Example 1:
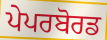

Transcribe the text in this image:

ਪੇਪਰਬੋਰਡ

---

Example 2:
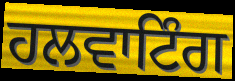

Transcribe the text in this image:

ਹਲਵਾਟਿੰਗ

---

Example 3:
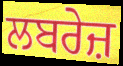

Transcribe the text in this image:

ਲਬਰੇਜ਼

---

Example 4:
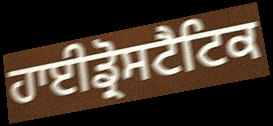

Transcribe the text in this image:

ਹਾਈਡ੍ਰੋਸਟੈਟਿਕ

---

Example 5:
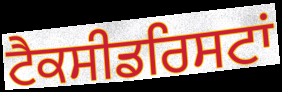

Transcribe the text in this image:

ਟੈਕਸੀਡਰਿਸਟਾਂ